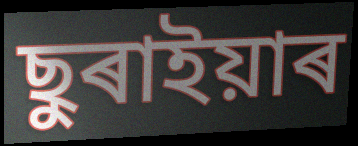
ছুৰাইয়াৰ